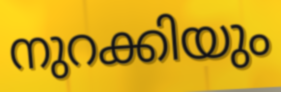
നുറക്കിയും